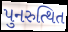
પુનરુત્થિત